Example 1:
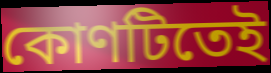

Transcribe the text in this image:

কোণটিতেই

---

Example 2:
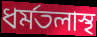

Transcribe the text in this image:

ধর্মতলাস্থ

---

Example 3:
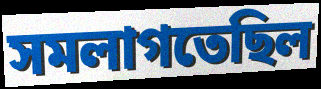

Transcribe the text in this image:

সমলাগতেছিল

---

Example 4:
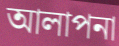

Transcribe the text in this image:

আলাপনা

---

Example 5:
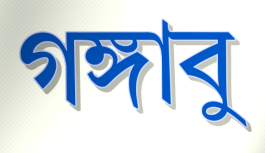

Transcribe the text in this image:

গঙ্গাবু